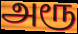
அரூ